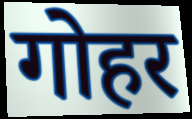
गोहर